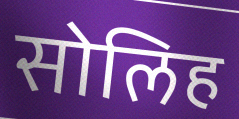
सोलिह